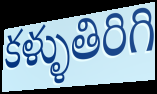
కళ్ళుతిరిగి